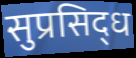
सुप्रसिद्ध